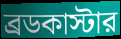
ব্রডকাস্টার